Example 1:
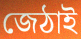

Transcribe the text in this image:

জেঠাই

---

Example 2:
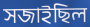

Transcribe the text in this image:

সজাইছিল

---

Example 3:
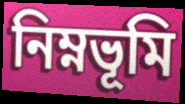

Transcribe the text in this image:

নিম্নভূমি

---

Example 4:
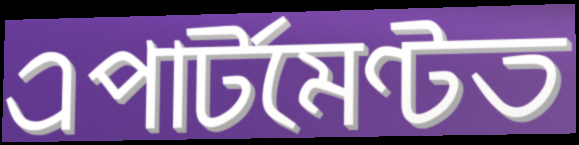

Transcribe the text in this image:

এপাৰ্টমেণ্টত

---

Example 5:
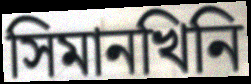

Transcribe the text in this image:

সিমানখিনি